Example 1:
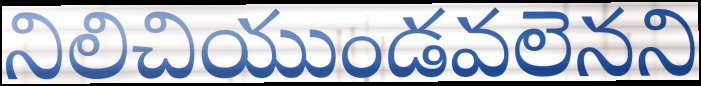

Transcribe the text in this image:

నిలిచియుండవలెనని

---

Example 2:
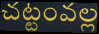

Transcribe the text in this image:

చట్టంవల్ల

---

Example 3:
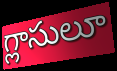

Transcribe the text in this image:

గ్లాసులూ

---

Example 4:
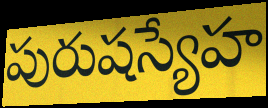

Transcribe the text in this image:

పురుషస్యేహ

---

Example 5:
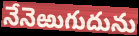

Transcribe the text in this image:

నేనెఱుగుదును